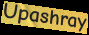
Upashray